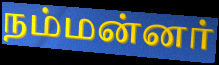
நம்மன்னர்